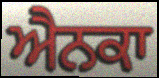
ਐਨਕਾ